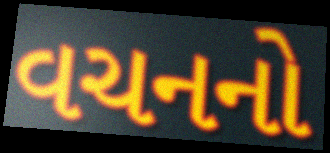
વચનનો